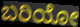
ಬರಿಯೋ